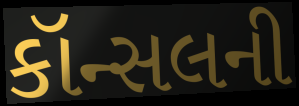
કૉન્સલની